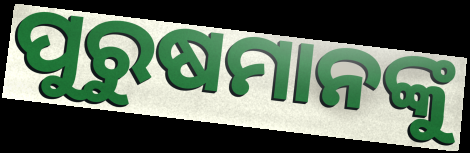
ପୁରୁଷମାନଙ୍କୁ